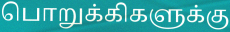
பொறுக்கிகளுக்கு